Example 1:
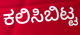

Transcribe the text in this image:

ಕಲಿಸಿಬಿಟ್ಟ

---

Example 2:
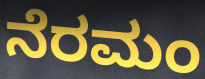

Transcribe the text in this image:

ನೆರಮಂ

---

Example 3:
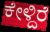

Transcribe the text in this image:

ಕೇಳ್ದಿರೆ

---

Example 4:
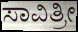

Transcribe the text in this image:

ಸಾವಿತ್ರೀ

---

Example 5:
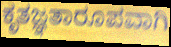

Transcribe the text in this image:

ಕೃತಜ್ಞತಾರೂಪವಾಗಿ